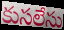
కుసలేసు